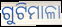
ଗୁଟିମାଳା